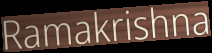
Ramakrishna